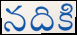
నదికి